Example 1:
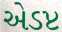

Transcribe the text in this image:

એડપ્ટ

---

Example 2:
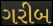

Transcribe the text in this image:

ગરીબ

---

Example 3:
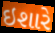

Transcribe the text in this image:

ઇશારે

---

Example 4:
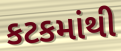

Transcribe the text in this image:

કટકમાંથી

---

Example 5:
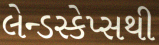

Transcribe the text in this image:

લેન્ડસ્કેપ્સથી